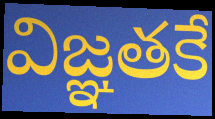
విజ్ఞతకే